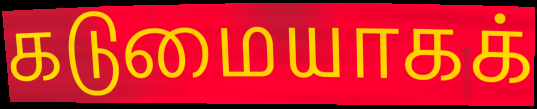
கடுமையாகக்